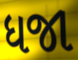
ધજા